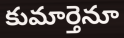
కుమార్తెనూ